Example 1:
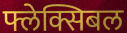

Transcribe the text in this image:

फ्लेक्सिबल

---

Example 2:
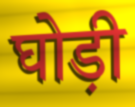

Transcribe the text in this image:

घोड़ी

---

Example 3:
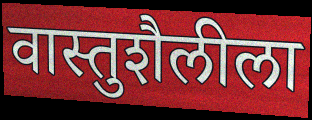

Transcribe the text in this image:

वास्तुशैलीला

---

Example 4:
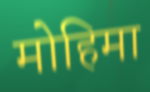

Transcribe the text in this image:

मोहिमा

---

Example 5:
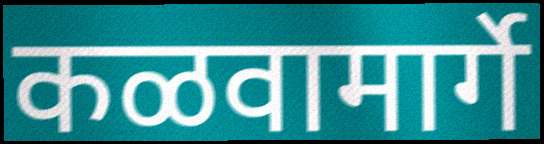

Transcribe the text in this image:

कळवामार्गे